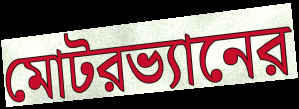
মোটরভ্যানের